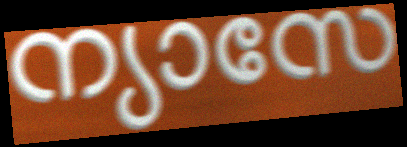
ന്യാസേ